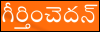
గీర్తించెదన్